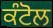
ਕੰਟੋਲ